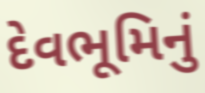
દેવભૂમિનું